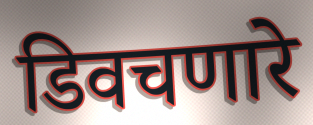
डिवचणारे